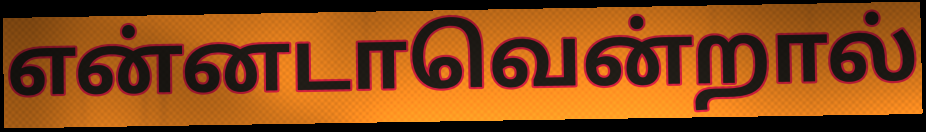
என்னடாவென்றால்